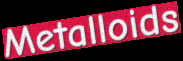
Metalloids